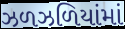
ઝળઝળિયાંમાં